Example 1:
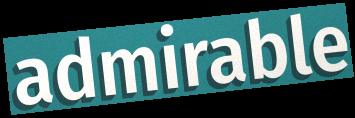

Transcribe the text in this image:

admirable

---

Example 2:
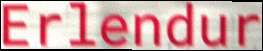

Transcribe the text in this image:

Erlendur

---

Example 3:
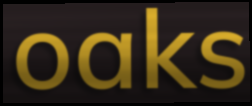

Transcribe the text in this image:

oaks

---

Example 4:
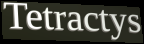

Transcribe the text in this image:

Tetractys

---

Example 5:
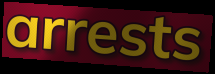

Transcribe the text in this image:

arrests